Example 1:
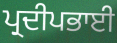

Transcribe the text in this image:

ਪ੍ਰਦੀਪਭਾਈ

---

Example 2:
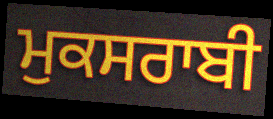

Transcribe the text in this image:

ਮੁਕਸਰਾਬੀ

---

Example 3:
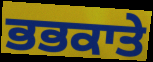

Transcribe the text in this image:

ਭਭਕਾਤੇ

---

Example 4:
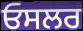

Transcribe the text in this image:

ਓਸਲਰ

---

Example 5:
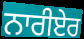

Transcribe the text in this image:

ਨਾਰੀਏਰ